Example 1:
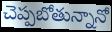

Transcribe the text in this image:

చెప్పబోతున్నానో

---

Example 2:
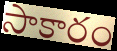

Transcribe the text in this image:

సాకారం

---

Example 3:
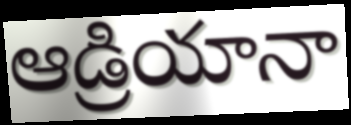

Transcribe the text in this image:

ఆడ్రియానా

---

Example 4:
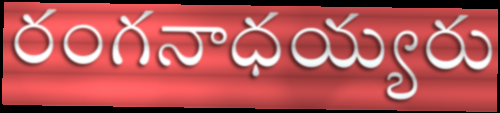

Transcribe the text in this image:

రంగనాధయ్యరు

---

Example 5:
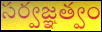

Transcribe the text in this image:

సర్వజ్ఞత్వం